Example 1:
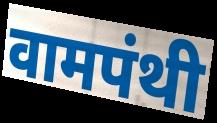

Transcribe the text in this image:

वामपंथी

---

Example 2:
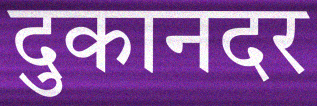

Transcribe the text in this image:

दुकानदर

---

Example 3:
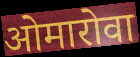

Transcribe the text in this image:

ओमारोवा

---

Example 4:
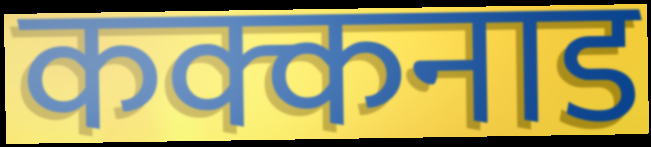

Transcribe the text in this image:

कक्कनाड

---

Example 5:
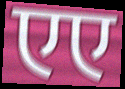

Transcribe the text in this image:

एए